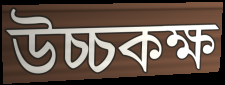
উচ্চকক্ষ